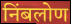
निंबलोण